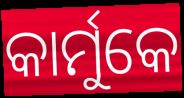
କାର୍ମୁକେ